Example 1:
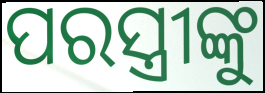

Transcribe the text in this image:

ପରସ୍ତ୍ରୀଙ୍କୁ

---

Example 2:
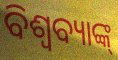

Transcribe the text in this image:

ବିଶ୍ଵବ୍ୟାଙ୍କ୍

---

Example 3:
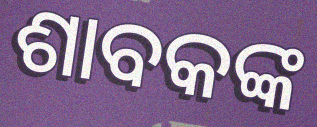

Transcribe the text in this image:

ଶାବକଙ୍କ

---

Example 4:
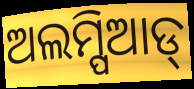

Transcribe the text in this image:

ଅଲମ୍ପିଆଡ୍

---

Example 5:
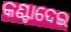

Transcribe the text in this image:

କଣ୍ଟାଦେଇ